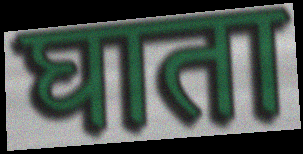
घाता